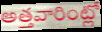
అత్తవారింట్లో